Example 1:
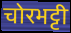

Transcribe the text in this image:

चोरभट्टी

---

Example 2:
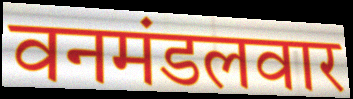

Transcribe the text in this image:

वनमंडलवार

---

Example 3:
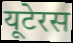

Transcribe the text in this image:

यूटेरस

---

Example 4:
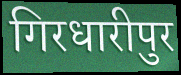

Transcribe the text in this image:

गिरधारीपुर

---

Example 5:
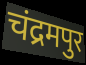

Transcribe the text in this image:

चंद्रमपुर